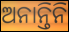
ଅନାନ୍ତିନି